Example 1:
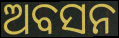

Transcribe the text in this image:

ଅବସନ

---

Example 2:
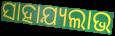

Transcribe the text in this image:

ସାହାଯ୍ୟଲାଭ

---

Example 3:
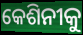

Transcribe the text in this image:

କେଶିନୀକୁ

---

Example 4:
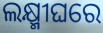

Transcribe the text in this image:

ଲକ୍ଷ୍ମୀଘରେ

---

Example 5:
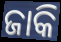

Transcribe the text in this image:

ଜାକି